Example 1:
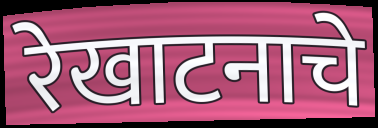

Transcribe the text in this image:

रेखाटनाचे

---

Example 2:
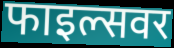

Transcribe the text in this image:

फाइल्सवर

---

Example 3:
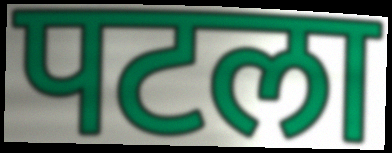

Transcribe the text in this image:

पटला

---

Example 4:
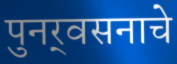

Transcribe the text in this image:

पुनर्वसनाचे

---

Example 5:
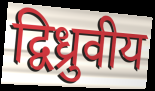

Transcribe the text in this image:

द्विध्रुवीय